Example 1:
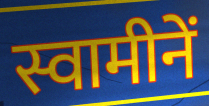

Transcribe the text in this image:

स्वामीनें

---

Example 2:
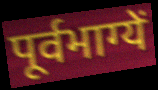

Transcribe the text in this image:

पूर्वभाग्यें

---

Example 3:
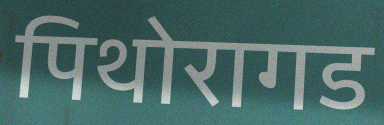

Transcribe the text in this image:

पिथोरागड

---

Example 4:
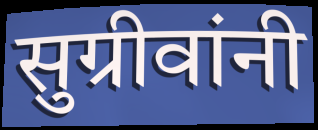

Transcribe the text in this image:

सुग्रीवांनी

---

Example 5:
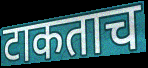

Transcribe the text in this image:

टाकताच